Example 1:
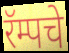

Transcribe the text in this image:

रॅम्पचे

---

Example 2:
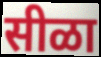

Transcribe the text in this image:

सीळा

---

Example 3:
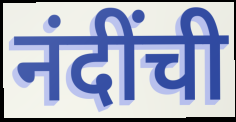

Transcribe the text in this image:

नंदींची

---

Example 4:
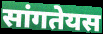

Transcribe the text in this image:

सांगतेयस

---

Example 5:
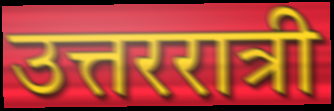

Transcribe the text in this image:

उत्तररात्री